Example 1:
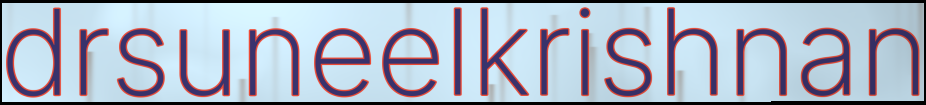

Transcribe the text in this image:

drsuneelkrishnan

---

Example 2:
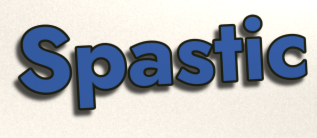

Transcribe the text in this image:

Spastic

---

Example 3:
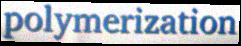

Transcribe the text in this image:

polymerization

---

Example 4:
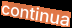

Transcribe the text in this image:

continua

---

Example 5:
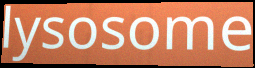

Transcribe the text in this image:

lysosome